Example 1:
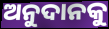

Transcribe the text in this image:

ଅନୁଦାନକୁ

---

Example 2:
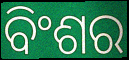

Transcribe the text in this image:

ବିଂଶର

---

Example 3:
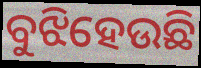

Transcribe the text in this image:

ବୁଝିହେଉଛି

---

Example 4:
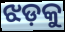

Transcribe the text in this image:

ଝଡ଼କୁ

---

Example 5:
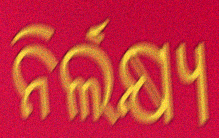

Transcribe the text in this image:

ନିର୍ଲକ୍ଷ୍ୟ